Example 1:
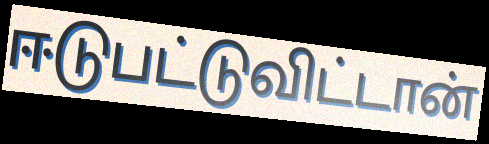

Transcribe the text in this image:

ஈடுபட்டுவிட்டான்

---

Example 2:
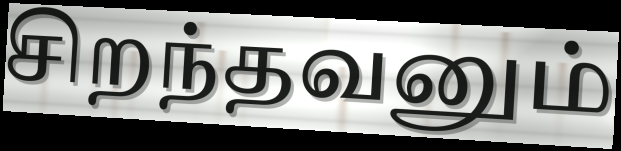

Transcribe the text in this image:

சிறந்தவனும்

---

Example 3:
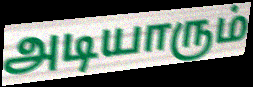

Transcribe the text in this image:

அடியாரும்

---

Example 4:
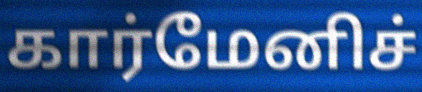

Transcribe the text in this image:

கார்மேனிச்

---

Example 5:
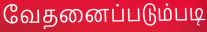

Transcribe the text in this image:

வேதனைப்படும்படி